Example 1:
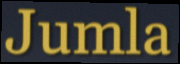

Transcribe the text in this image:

Jumla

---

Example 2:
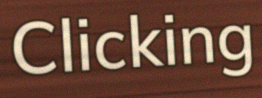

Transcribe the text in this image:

Clicking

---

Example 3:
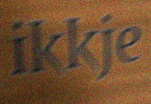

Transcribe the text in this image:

ikkje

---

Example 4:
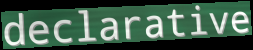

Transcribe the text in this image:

declarative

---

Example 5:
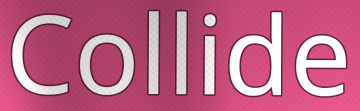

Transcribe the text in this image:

Collide